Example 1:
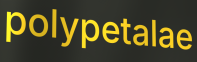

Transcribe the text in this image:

polypetalae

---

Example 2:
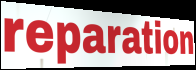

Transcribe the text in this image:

reparation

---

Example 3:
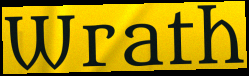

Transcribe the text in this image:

Wrath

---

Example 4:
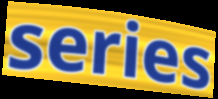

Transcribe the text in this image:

series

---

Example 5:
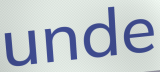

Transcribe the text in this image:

unde